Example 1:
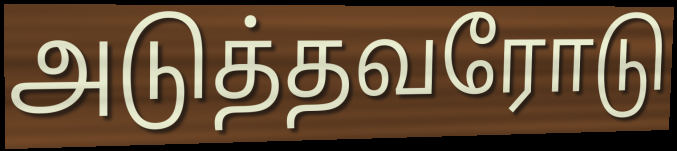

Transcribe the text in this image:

அடுத்தவரோடு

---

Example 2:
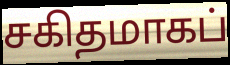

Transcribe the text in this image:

சகிதமாகப்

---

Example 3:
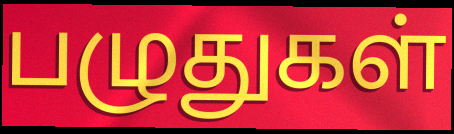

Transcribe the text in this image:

பழுதுகள்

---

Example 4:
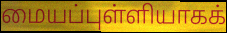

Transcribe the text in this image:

மையப்புள்ளியாகக்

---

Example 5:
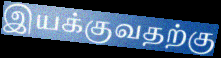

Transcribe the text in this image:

இயக்குவதற்கு